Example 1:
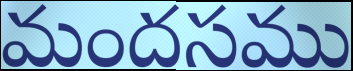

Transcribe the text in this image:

మందసము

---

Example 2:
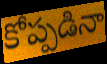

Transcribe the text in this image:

కోప్పడినా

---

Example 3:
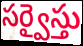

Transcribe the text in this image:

సర్వైస్తు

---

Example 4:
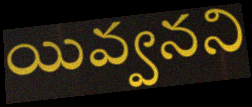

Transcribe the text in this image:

యివ్వనని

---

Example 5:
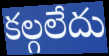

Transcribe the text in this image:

కల్గలేదు